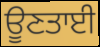
ਊਣਤਾਈ